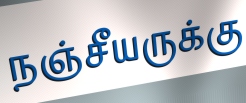
நஞ்சீயருக்கு